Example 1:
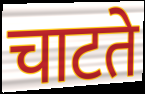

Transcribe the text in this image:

चाटते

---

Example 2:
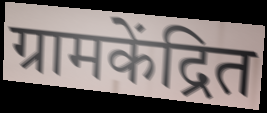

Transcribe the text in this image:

ग्रामकेंद्रित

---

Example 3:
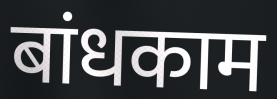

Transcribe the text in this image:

बांधकाम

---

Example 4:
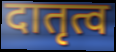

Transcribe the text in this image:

दातृत्व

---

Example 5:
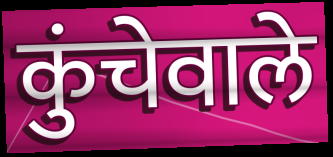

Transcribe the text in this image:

कुंचेवाले